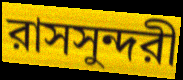
রাসসুন্দরী